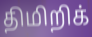
திமிறிக்